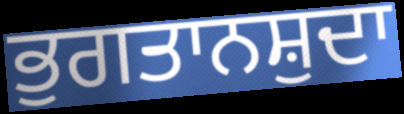
ਭੁਗਤਾਨਸ਼ੁਦਾ